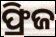
ଫ୍ରିଜ